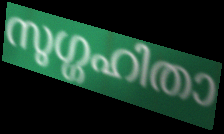
സുഗ്ഗഹിതാ